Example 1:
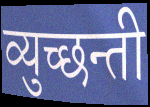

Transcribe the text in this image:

व्युच्छन्ती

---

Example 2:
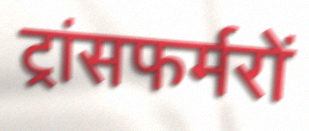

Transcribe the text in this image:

ट्रांसफर्मरों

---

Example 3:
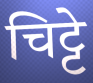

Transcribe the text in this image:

चिट्टे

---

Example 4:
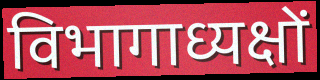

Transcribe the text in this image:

विभागाध्यक्षों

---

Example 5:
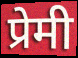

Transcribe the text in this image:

प्रेमी